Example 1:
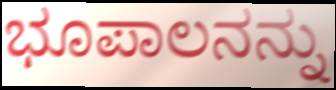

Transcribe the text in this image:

ಭೂಪಾಲನನ್ನು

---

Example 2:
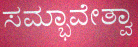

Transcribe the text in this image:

ಸಮ್ಭಾವೇತ್ವಾ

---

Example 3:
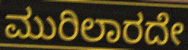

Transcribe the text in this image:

ಮುರಿಲಾರದೇ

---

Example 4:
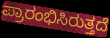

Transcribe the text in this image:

ಪ್ರಾರಂಭಿಸಿರುತ್ತದೆ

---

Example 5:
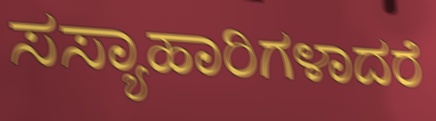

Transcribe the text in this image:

ಸಸ್ಯಾಹಾರಿಗಳಾದರೆ